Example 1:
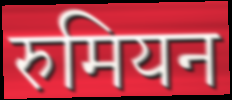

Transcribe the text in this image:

रुमियन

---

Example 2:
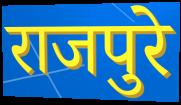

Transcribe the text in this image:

राजपुरे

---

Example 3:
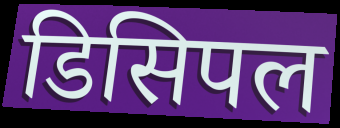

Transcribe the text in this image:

डिसिपल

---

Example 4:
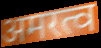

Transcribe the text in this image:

अमरत्व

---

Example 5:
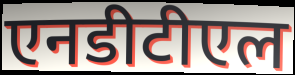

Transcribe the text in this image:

एनडीटीएल